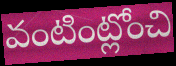
వంటింట్లోంచి